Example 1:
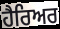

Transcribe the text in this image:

ਹੈਰਿਅਰ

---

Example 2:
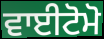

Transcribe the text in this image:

ਵਾਈਟੋਮੋ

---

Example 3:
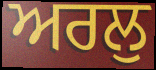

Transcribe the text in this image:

ਅਰਲੁ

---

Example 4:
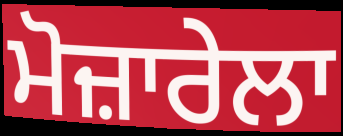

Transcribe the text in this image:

ਮੋਜ਼ਾਰੇਲਾ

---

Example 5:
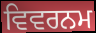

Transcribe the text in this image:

ਵਿਵਰਨਮ